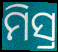
ମିସ୍ର